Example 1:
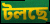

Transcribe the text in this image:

টলছে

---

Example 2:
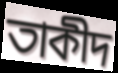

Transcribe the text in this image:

তাকীদ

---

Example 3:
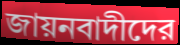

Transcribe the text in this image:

জায়নবাদীদের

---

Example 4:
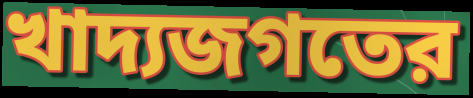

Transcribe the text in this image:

খাদ্যজগতের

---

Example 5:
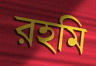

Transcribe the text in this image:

রহমি